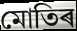
মোতিৰ